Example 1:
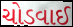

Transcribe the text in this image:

ચોડવાઈ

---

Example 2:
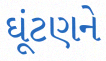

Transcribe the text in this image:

ઘૂંટણને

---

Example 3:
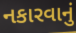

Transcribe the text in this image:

નકારવાનું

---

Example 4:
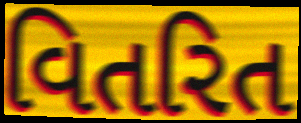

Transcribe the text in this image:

વિતરિત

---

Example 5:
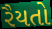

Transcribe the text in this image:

રૈયતો